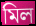
মিল